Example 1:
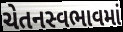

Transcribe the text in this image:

ચેતનસ્વભાવમાં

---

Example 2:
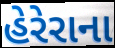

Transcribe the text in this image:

હેરેરાના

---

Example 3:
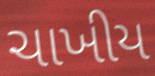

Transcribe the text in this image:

ચાખીય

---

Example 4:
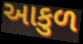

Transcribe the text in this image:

આકુળ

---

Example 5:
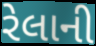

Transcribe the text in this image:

રેલાની